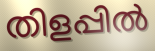
തിളപ്പിൽ